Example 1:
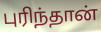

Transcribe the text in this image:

புரிந்தான்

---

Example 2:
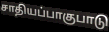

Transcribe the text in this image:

சாதியப்பாகுபாடு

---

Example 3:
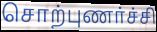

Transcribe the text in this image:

சொற்புணர்ச்சி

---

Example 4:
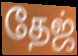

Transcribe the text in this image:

தேஜ்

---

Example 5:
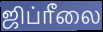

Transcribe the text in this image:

ஜிப்ரீலை